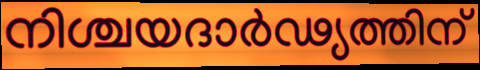
നിശ്ചയദാർഢ്യത്തിന്